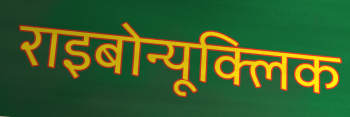
राइबोन्यूक्लिक